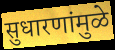
सुधारणांमुळे